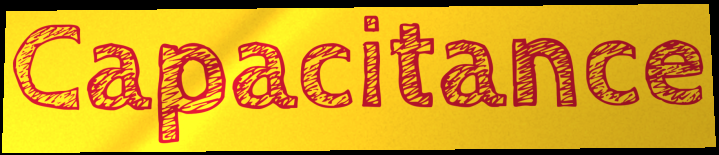
Capacitance